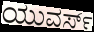
ಯುವರ್ಸ್